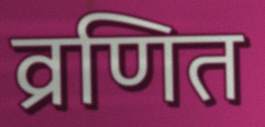
व्रणित